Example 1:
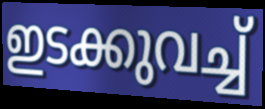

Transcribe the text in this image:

ഇടക്കുവച്ച്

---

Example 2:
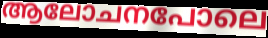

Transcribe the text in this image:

ആലോചനപോലെ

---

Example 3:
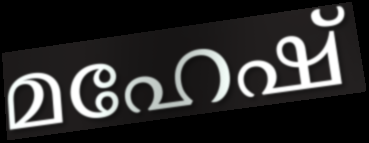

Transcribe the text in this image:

മഹേഷ്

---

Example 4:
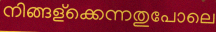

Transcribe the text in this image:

നിങ്ങള്ക്കെന്നതുപോലെ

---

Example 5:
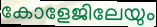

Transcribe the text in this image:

കോളേജിലേയും